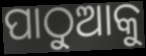
ପାଠୁଆକୁ